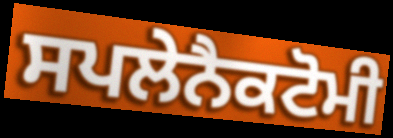
ਸਪਲੇਨੈਕਟੋਮੀ